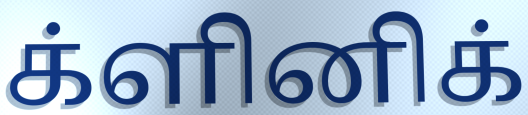
க்ளினிக்